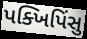
પક્ખિપિંસુ